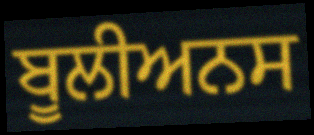
ਬੂਲੀਅਨਸ